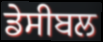
ਡੇਸੀਬਲ